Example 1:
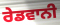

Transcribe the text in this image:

ਰੇਡਵਾਨੀ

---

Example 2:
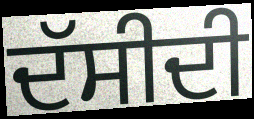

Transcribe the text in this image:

ਦੱਸੀਦੀ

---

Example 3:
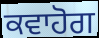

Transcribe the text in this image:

ਕਵਾਹੋਗ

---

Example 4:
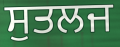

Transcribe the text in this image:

ਸੁਤਲਜ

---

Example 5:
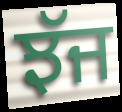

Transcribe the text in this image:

ਝੱਜ